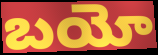
బయో